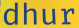
dhur